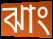
ঝাং